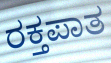
ರಕ್ತಪಾತ